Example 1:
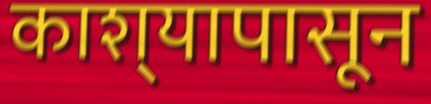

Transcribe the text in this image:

काश्यापासून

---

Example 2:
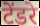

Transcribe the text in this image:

टेंडरे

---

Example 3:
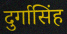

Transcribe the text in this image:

दुर्गासिंह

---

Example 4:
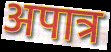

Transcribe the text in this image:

अपात्र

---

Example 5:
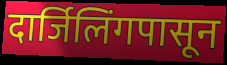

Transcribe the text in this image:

दार्जिलिंगपासून